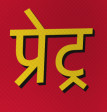
प्रेट्र